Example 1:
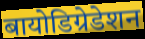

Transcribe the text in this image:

बायोडिग्रेडेशन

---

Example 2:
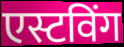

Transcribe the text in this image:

एस्टविंग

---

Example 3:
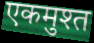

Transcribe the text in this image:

एकमुश्‍त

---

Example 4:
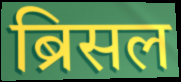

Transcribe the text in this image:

ब्रिसल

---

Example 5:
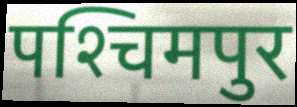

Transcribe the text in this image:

पश्चिमपुर